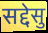
सद्देसु